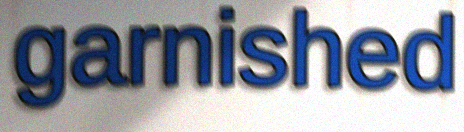
garnished